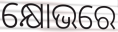
କ୍ଷୋଭରେ